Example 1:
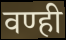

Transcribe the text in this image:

वण्ही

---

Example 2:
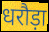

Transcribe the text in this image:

धरौड़ा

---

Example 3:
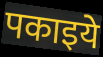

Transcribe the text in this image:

पकाइये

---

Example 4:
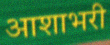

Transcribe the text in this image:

आशाभरी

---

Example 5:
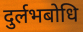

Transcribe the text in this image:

दुर्लभबोधि